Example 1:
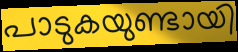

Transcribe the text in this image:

പാടുകയുണ്ടായി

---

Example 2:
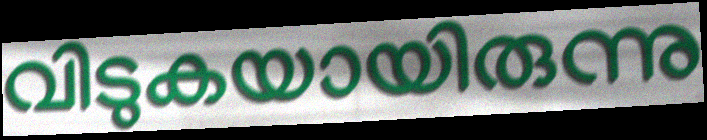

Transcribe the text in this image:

വിടുകയായിരുന്നു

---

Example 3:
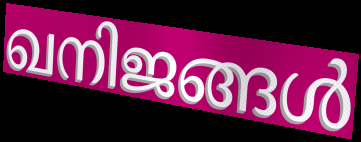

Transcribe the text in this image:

ഖനിജങ്ങൾ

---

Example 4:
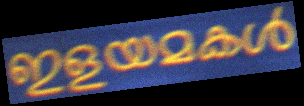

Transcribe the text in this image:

ഇളയമകൾ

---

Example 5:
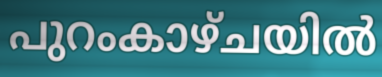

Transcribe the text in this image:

പുറംകാഴ്ചയിൽ